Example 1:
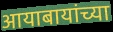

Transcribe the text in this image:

आयाबायांच्या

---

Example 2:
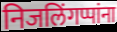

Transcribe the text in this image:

निजलिंगप्पांना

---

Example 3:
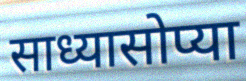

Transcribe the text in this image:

साध्यासोप्या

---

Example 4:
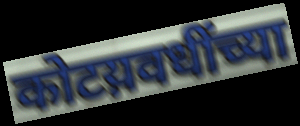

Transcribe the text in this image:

कोटय़वधींच्या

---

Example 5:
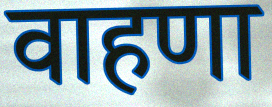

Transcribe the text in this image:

वाहणा